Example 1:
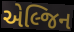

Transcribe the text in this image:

એલ્જિન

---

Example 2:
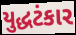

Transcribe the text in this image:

યુદ્ધટંકાર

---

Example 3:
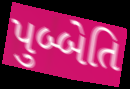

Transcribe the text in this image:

પુબ્બેતિ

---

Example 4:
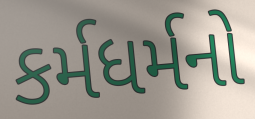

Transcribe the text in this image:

કર્મધર્મનો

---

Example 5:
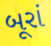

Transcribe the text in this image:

બૂરાં